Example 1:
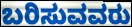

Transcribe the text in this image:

ಬರಿಸುವವರು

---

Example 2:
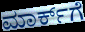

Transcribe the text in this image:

ಮಾರ್ಕ್‌ಗೆ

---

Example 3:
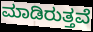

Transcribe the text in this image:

ಮಾಡಿರುತ್ತವೆ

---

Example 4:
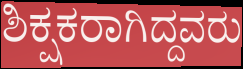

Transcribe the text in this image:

ಶಿಕ್ಷಕರಾಗಿದ್ದವರು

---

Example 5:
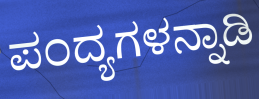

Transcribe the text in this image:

ಪಂದ್ಯಗಳನ್ನಾಡಿ